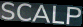
SCALP